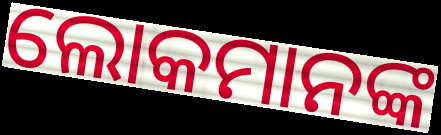
ଲୋକମାନଙ୍କ